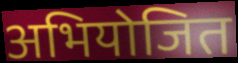
अभियोजित